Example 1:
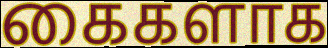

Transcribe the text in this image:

கைகளாக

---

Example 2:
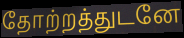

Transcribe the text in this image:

தோற்றத்துடனே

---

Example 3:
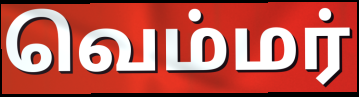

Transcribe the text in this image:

வெம்மர்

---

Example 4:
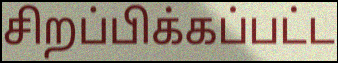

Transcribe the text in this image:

சிறப்பிக்கப்பட்ட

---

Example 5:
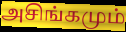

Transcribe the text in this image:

அசிங்கமும்